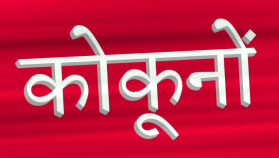
कोकूनों